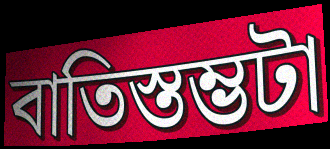
বাতিস্তম্ভটা